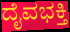
ದೈವಭಕ್ತಿ